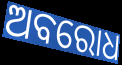
ଅବରୋଧ